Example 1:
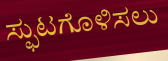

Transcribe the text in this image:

ಸ್ಫುಟಗೊಳಿಸಲು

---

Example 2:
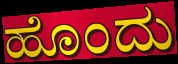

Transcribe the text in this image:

ಹೊಂದು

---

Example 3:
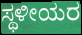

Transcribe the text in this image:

ಸ್ಥಳೀಯರ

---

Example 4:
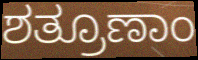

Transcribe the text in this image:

ಶತ್ರೂಣಾಂ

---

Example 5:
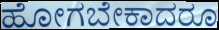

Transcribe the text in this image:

ಹೋಗಬೇಕಾದರೂ